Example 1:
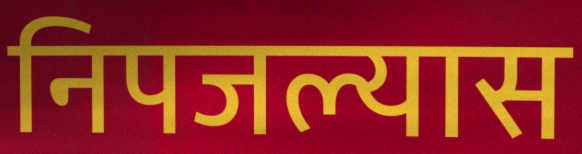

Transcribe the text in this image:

निपजल्यास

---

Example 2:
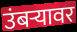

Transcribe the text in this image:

उंबर्‍यावर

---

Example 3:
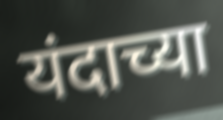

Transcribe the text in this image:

यंदाच्या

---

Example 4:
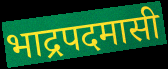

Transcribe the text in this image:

भाद्रपदमासी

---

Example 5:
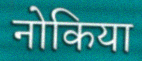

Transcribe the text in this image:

नोकिया